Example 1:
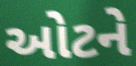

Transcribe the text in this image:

ઓટને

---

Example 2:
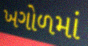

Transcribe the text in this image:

ખગોળમાં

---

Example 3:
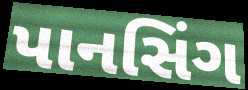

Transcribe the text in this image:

પાનસિંગ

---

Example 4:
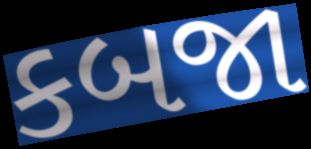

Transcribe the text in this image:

કબજા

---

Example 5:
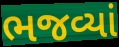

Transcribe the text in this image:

ભજવ્યાં